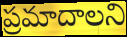
ప్రమాదాలని